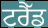
ਟਰੈੱਡ